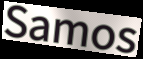
Samos